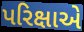
પરિક્ષાએ